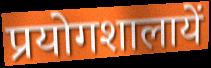
प्रयोगशालायें